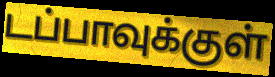
டப்பாவுக்குள்